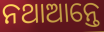
ନଥାଆନ୍ତେ